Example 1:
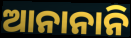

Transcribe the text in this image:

ଆନାନାନି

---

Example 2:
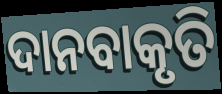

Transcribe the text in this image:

ଦାନବାକୃତି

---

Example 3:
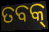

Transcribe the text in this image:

ତବକ୍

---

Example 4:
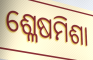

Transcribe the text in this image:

ଶ୍ଳେଷମିଶା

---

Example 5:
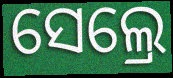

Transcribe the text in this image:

ସେଲ୍ରେ